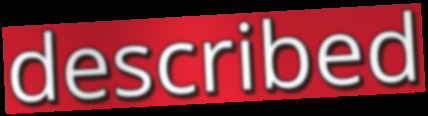
described